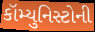
કૉમ્યુનિસ્ટોની